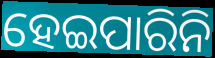
ହେଇପାରିନି